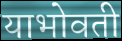
याभोवती